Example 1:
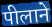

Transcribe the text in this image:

पीलाने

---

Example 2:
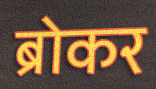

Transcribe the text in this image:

ब्रोकर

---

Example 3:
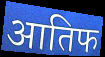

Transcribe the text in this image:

आतिफ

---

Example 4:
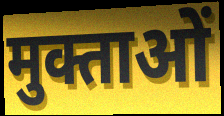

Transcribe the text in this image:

मुक्ताओं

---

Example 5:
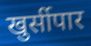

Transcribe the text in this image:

खुर्सीपार